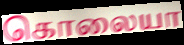
கொலையா